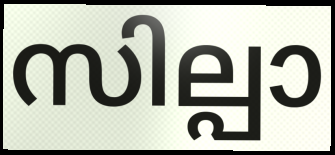
സില്പാ